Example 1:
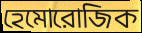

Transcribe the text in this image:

হেমোরোজিক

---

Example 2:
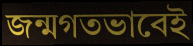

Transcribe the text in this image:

জন্মগতভাবেই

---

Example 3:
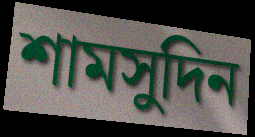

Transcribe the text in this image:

শামসুদিন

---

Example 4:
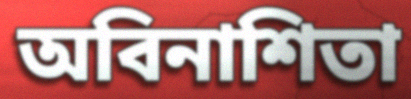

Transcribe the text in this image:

অবিনাশিতা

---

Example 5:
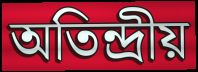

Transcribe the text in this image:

অতিন্দ্রীয়